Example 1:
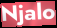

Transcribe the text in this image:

Njalo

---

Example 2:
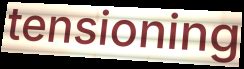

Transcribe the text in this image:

tensioning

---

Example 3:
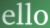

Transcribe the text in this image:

ello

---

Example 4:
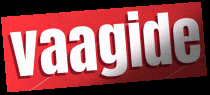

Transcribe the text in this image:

vaagide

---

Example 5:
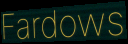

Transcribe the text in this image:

Fardows